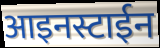
आइनस्टाईन